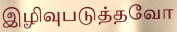
இழிவுபடுத்தவோ